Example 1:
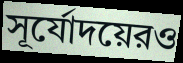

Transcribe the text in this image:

সূর্যোদয়েরও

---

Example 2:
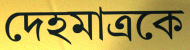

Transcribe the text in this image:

দেহমাত্রকে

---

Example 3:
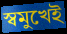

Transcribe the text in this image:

স্বমুখেই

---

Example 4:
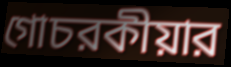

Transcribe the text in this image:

গোচরকীয়ার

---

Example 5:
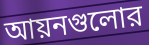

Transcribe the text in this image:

আয়নগুলোর